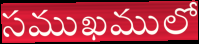
సముఖములో